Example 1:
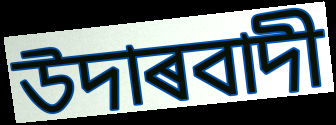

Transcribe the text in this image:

উদাৰবাদী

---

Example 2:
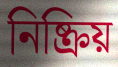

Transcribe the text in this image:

নিষ্ক্ৰিয়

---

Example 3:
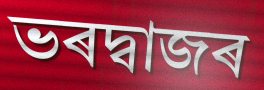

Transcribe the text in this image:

ভৰদ্বাজৰ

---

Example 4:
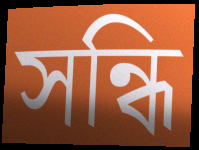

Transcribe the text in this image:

সন্ধি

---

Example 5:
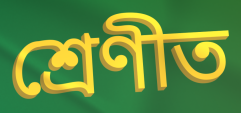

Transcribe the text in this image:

শ্ৰেণীত